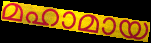
മഹാമായ